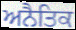
ਅਨੈਤਿਕ